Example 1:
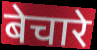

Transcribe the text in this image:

बेचारे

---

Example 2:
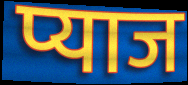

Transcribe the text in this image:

प्याज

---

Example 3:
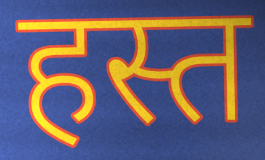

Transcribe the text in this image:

हस्त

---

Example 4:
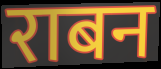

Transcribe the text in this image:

राबन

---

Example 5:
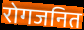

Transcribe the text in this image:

रोगजनित